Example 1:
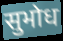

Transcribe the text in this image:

सुभोध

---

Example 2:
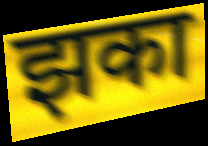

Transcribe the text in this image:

झका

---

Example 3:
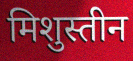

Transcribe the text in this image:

मिशुस्तीन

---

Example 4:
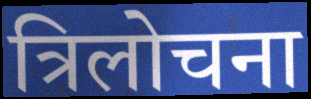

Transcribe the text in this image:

त्रिलोचना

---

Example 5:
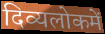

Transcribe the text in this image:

दिव्यलोकमें